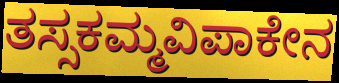
ತಸ್ಸಕಮ್ಮವಿಪಾಕೇನ